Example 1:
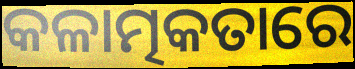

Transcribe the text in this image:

କଳାତ୍ମକତାରେ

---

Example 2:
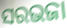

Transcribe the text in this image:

ସରଭଜା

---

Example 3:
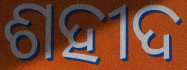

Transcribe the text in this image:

ଶହୀଦ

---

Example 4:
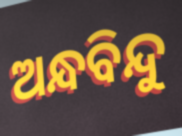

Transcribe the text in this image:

ଅନ୍ଧବିନ୍ଦୁ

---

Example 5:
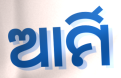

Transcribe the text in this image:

ଆର୍ମି